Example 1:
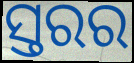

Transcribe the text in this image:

ସ୍ତରର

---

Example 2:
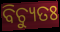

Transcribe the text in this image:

ବିଚ୍ୟୁତଃ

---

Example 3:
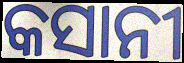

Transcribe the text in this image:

କସାନୀ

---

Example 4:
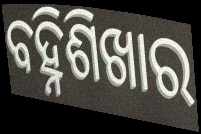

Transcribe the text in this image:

ବହ୍ନିଶିଖାର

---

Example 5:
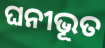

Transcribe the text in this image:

ଘନୀଭୂତ